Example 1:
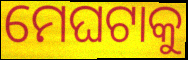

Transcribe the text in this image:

ମେଘଟାକୁ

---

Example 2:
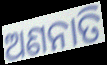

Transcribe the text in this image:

ଅଣନାତି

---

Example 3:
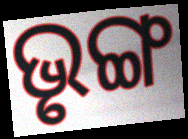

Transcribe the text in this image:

ଭୃଙ୍ଗ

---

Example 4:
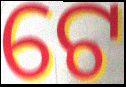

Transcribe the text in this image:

ଟେ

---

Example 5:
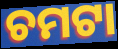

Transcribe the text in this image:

ଚମଟା